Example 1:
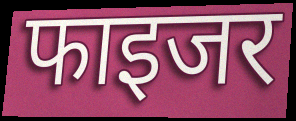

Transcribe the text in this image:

फाइजर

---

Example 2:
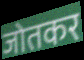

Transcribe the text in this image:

जोतकर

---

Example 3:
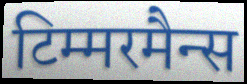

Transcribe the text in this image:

टिम्मरमैन्स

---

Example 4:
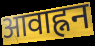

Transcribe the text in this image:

आवाह्नन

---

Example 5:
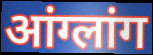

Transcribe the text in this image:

आंग्लांग